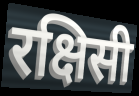
रक्षिसी